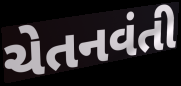
ચેતનવંતી